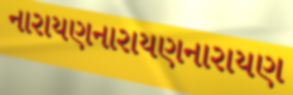
નારાયણનારાયણનારાયણ